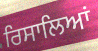
ਰਿਸਾਲਿਆਂ